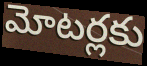
మోటర్లకు